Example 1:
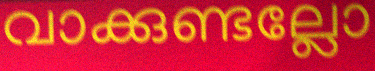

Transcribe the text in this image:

വാക്കുണ്ടല്ലോ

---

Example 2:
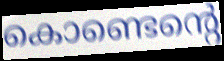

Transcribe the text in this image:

കൊണ്ടെന്റെ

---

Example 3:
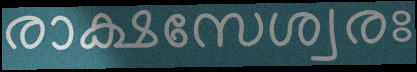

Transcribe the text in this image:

രാക്ഷസേശ്വരഃ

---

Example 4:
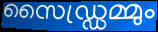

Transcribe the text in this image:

സൈഡ്ഡ്രമ്മും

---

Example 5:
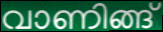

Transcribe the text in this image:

വാണിങ്ങ്